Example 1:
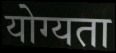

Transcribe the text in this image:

योग्‍यता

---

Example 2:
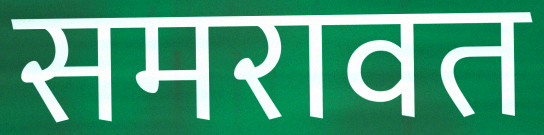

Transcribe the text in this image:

समरावत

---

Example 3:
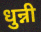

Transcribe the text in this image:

धुन्नी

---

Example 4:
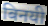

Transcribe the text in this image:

बिनयी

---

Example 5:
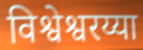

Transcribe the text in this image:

विश्वेश्वरय्या